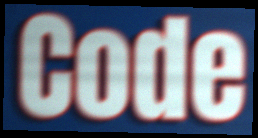
Code